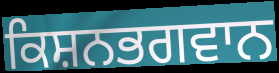
ਕਿਸ਼ਨਭਗਵਾਨ